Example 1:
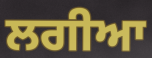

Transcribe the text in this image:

ਲਗੀਆ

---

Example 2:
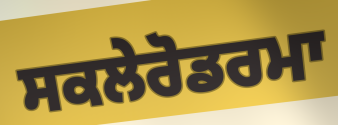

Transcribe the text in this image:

ਸਕਲੇਰੋਡਰਮਾ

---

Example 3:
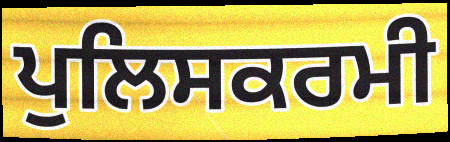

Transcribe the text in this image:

ਪੁਲਿਸਕਰਮੀ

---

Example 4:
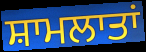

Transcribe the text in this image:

ਸ਼ਾਮਲਾਤਾਂ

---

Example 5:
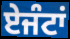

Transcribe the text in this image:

ਏਜੰਟਾਂ